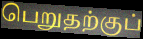
பெறுதற்குப்